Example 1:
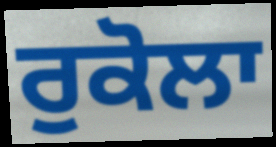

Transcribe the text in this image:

ਰੁਕੋਲਾ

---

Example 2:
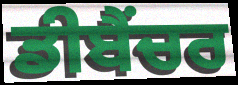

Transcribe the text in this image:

ਡੀਬੈਂਚਰ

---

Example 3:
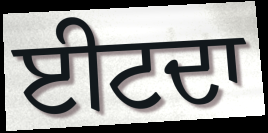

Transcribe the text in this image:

ਈਟਦਾ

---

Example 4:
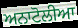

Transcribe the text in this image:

ਅਨਾਟੋਲੀਆ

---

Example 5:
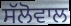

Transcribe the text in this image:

ਸੱਲੋਵਾਲ